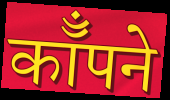
कॉँपने